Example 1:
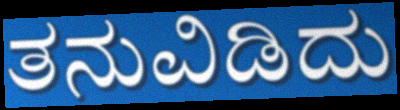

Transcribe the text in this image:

ತನುವಿಡಿದು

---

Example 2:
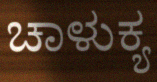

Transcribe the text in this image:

ಚಾಳುಕ್ಯ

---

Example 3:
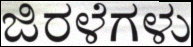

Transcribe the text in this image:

ಜಿರಳೆಗಳು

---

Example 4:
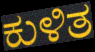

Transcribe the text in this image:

ಕುಳಿತ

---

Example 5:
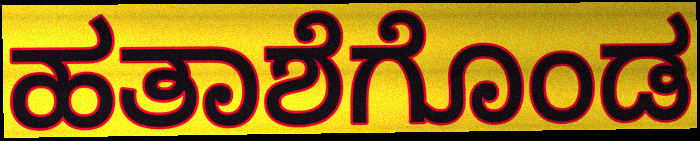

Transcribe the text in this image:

ಹತಾಶೆಗೊಂಡ